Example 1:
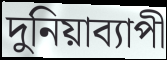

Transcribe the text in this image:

দুনিয়াব্যাপী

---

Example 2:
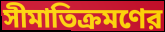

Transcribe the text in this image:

সীমাতিক্রমণের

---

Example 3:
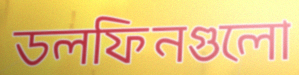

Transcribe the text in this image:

ডলফিনগুলো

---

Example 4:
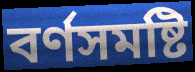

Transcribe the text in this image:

বর্ণসমষ্টি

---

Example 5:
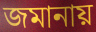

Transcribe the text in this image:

জমানায়